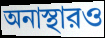
অনাস্থারও